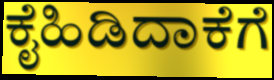
ಕೈಹಿಡಿದಾಕೆಗೆ